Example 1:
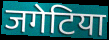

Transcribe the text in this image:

जगेटिया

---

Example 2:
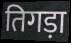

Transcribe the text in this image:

तिगड़ा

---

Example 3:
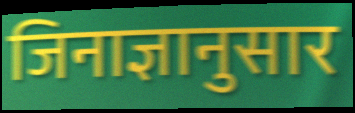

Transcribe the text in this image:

जिनाज्ञानुसार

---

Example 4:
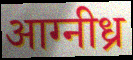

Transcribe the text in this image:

आग्नीध्र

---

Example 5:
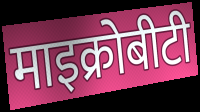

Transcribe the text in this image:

माइक्रोबीटी